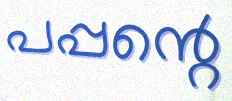
പപ്പന്റെ